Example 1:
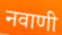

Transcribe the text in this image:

नवाणी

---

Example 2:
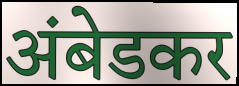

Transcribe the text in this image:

अंबेडकर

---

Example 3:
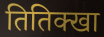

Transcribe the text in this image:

तितिक्खा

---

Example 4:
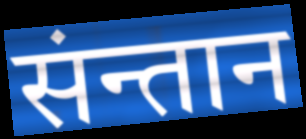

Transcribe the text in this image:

संन्तान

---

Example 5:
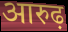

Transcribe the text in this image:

आरुढ़